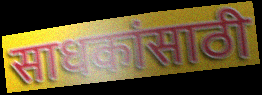
साधकांसाठी